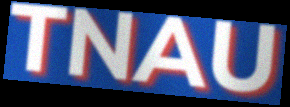
TNAU